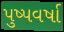
પુષ્પવર્ષા